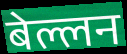
बेल्लन